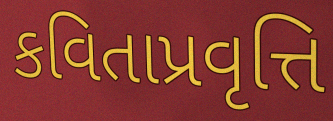
કવિતાપ્રવૃત્તિ